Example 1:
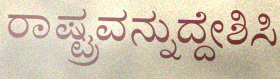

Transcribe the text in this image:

ರಾಷ್ಟ್ರವನ್ನುದ್ದೇಶಿಸಿ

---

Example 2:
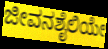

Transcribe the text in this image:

ಜೀವನಶೈಲಿಯೇ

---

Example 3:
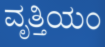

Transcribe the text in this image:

ವೃತ್ತಿಯಂ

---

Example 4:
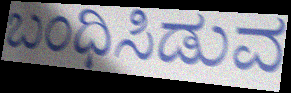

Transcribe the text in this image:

ಬಂಧಿಸಿಡುವ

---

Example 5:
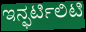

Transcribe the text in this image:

ಇನ್ಫರ್ಟಿಲಿಟಿ